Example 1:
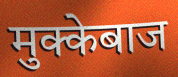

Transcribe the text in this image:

मुक्केबाज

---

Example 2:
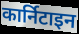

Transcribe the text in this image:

कार्निटाइन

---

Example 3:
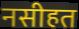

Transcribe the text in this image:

नसीहत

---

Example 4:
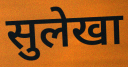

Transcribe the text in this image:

सुलेखा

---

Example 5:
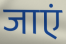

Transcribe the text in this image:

जाएं